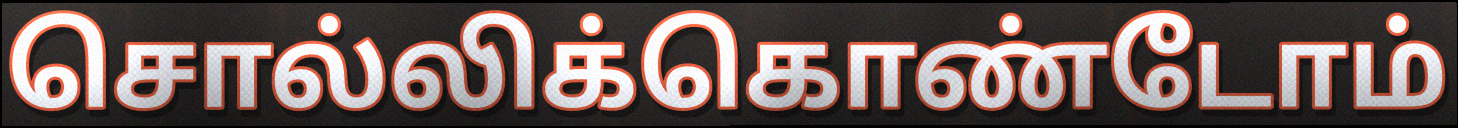
சொல்லிக்கொண்டோம்